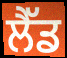
ਲੈੱਡ